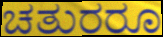
ಚತುರರೂ